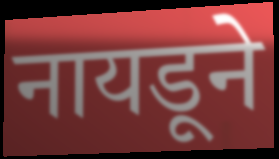
नायडूने